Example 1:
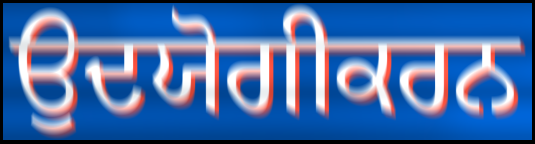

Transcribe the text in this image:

ਉਦਯੋਗੀਕਰਨ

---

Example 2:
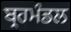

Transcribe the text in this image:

ਬ੍ਰਹਮੰਡਲ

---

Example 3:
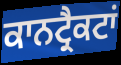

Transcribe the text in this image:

ਕਾਨਟ੍ਰੈਕਟਾਂ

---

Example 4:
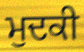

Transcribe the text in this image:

ਮੁਦਕੀ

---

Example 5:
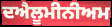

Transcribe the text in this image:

ਦਐਲੂਮੀਨੀਅਮ